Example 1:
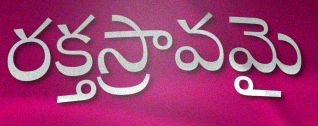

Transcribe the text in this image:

రక్తస్రావమై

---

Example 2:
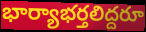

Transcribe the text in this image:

భార్యాభర్తలిద్దరూ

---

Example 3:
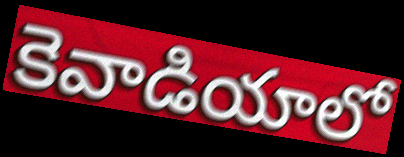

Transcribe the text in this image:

కెవాడియాలో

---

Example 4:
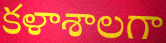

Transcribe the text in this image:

కళాశాలగా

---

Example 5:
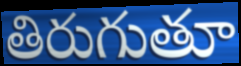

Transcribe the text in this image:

తిరుగుతూ